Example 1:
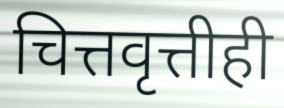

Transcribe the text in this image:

चित्तवृत्तीही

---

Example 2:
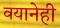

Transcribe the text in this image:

वयानेही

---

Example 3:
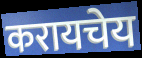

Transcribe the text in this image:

करायचेय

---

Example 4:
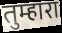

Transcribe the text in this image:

तुम्हारा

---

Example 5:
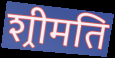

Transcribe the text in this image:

श्रीमति